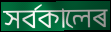
সৰ্বকালেৰ